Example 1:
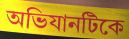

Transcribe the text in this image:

অভিযানটিকে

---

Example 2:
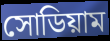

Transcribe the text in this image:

সোডিয়াম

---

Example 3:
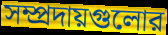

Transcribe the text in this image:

সম্প্রদায়গুলোর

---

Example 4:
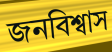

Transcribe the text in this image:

জনবিশ্বাস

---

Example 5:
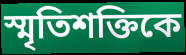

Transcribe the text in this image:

স্মৃতিশক্তিকে